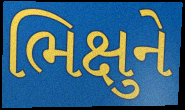
ભિક્ષુને